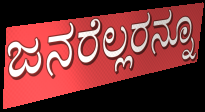
ಜನರೆಲ್ಲರನ್ನೂ